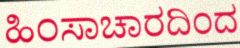
ಹಿಂಸಾಚಾರದಿಂದ